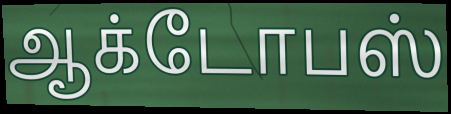
ஆக்டோபஸ்